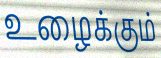
உழைக்கும்